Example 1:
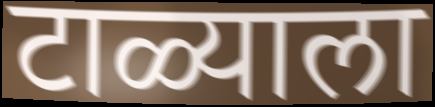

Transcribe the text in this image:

टाळ्याला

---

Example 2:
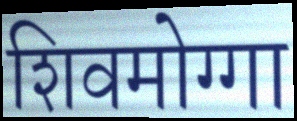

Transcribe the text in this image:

शिवमोग्गा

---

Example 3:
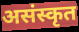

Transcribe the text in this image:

असंस्कृत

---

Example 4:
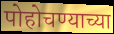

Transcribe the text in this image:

पोहोचण्याच्या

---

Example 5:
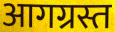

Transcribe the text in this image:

आगग्रस्त